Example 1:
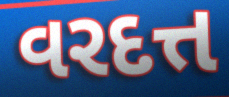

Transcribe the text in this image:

વરદત્ત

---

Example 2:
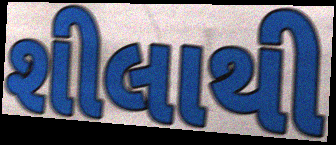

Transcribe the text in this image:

શીલાથી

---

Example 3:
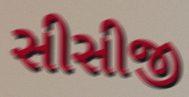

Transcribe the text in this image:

સીસીજી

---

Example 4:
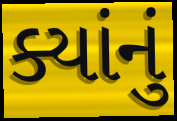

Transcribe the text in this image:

ક્યાંનું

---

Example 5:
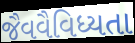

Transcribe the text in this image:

જૈવવૈવિધ્યતા